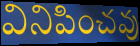
వినిపించవు